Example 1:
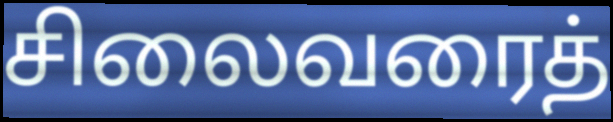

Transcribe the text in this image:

சிலைவரைத்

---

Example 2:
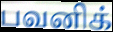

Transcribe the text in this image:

பவனிக்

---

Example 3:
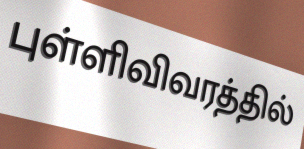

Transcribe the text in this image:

புள்ளிவிவரத்தில்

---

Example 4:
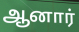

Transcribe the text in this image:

ஆனார்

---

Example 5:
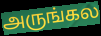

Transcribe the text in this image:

அருங்கல